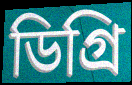
ডিগ্ৰি